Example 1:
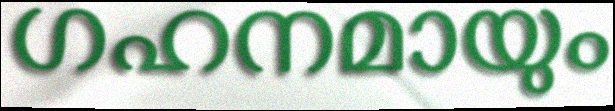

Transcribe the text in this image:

ഗഹനമായും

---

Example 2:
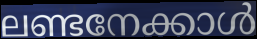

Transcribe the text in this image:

ലണ്ടനേക്കാൾ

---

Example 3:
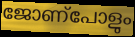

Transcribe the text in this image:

ജോണ്പോളും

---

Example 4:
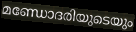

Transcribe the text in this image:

മണ്ഡോദരിയുടെയും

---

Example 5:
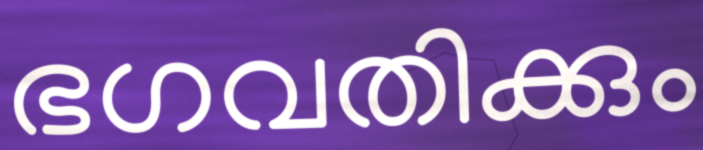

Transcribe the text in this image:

ഭഗവതിക്കും